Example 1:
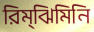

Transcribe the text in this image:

রিম্‌ঝিমিনি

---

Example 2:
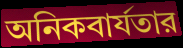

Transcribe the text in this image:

অনিকবার্যতার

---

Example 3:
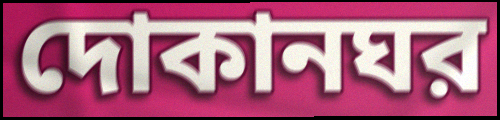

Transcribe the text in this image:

দোকানঘর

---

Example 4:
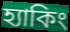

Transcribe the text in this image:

হ্যাকিং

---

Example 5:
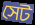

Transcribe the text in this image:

সেট